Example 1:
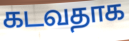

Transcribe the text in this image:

கடவதாக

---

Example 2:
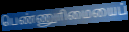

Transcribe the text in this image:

பெண்ணுரிமையைப்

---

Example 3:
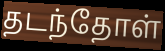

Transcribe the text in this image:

தடந்தோள்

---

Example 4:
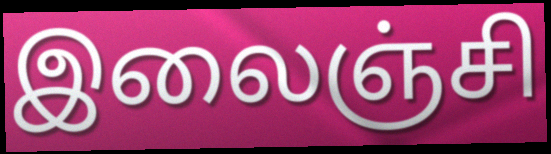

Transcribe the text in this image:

இலைஞ்சி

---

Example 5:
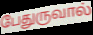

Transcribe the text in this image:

பேதுருவால்